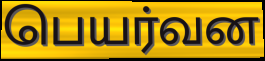
பெயர்வன